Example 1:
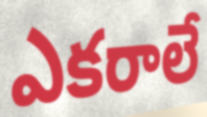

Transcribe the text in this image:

ఎకరాలే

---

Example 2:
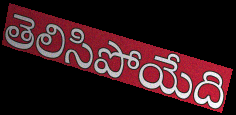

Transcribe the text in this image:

తెలిసిపోయేది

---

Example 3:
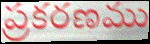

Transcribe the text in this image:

ప్రకరణము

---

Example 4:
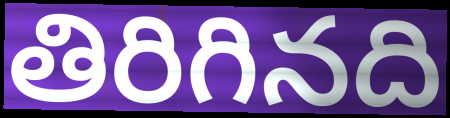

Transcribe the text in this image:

తిరిగినది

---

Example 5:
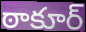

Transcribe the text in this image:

ఠాకూర్